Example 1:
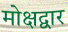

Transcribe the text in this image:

मोक्षद्वार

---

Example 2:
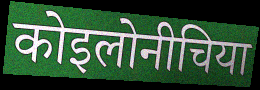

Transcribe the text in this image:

कोइलोनीचिया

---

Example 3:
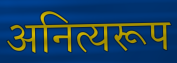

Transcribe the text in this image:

अनित्यरूप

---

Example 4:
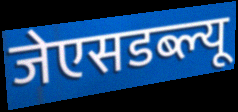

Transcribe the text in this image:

जेएसडब्ल्यू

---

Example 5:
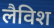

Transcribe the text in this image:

लैविश